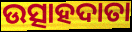
ଉତ୍ସାହଦାତା